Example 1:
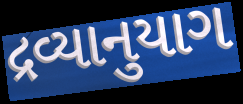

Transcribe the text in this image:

દ્રવ્યાનુયાગ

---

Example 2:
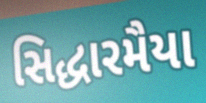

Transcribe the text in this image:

સિદ્ધારમૈયા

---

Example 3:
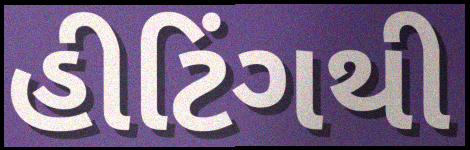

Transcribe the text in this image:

હીટિંગથી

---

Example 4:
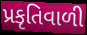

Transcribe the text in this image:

પ્રકૃતિવાળી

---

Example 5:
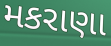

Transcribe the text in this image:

મકરાણા